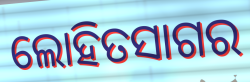
ଲୋହିତସାଗର